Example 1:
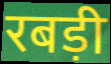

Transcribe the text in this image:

रबड़ी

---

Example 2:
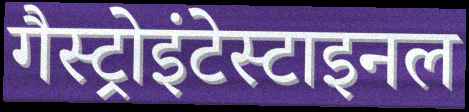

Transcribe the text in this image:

गैस्ट्रोइंटेस्टाइनल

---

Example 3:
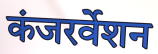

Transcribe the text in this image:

कंजरर्वेशन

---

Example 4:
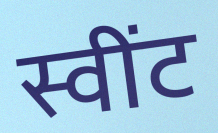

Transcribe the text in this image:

स्वींट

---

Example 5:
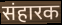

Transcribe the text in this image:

संहारक